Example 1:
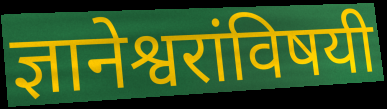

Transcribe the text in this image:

ज्ञानेश्वरांविषयी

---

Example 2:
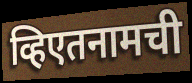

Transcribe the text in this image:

व्हिएतनामची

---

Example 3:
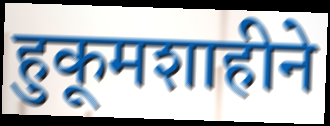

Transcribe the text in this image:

हुकूमशाहीने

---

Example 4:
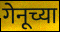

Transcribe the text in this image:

गेनूच्या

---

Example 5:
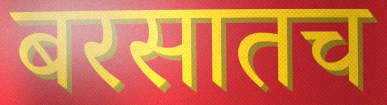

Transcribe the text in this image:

बरसातच